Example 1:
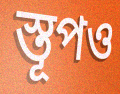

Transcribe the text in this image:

স্তূপও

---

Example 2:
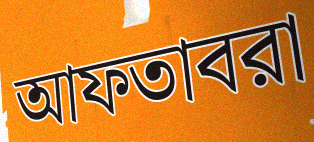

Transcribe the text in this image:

আফতাবরা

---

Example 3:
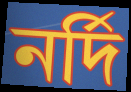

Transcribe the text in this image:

নর্দি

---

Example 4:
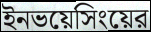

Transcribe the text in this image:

ইনভয়েসিংয়ের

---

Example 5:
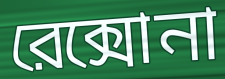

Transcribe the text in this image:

রেক্সোনা